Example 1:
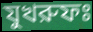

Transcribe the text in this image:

যুখরুফঃ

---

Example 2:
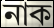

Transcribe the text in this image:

নাক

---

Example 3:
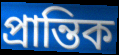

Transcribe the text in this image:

প্রান্তিক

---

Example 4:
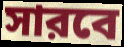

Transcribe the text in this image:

সারবে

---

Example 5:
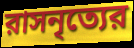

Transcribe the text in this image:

রাসনৃত্যের